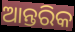
ଆନ୍ତରିକ